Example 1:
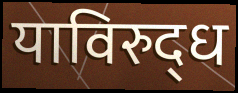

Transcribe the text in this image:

याविरुद्ध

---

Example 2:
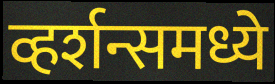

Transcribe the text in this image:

व्हर्शन्समध्ये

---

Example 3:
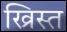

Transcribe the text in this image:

ख्रिस्त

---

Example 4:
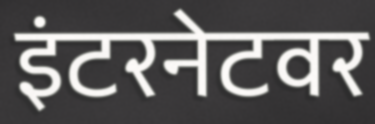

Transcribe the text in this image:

इंटरनेटवर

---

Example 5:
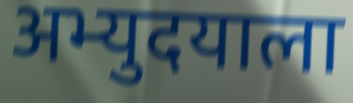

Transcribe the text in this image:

अभ्युदयाला